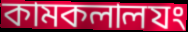
কামকলালযং